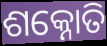
ଶକ୍ନୋତି